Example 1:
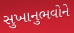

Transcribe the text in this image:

સુખાનુભવોને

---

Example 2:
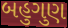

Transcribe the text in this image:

બહુગુણ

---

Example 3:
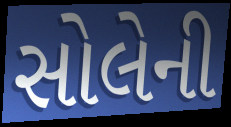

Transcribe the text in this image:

સોલેની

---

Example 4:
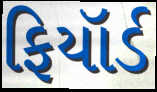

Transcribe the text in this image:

ફિયૉર્ડ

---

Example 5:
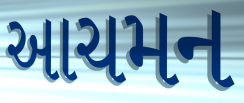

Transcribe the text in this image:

આચમન